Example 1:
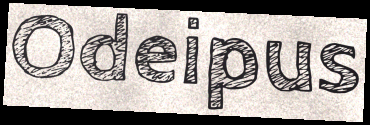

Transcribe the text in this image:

Odeipus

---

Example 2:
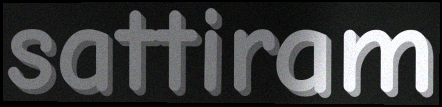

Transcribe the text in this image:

sattiram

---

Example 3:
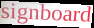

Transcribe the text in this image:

signboard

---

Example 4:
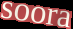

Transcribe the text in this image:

soora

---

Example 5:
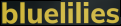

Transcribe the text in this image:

bluelilies